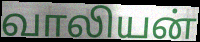
வாலியன்